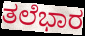
ತಲೆಭಾರ